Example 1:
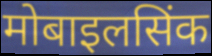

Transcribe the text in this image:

मोबाइलसिंक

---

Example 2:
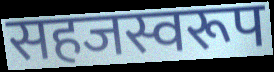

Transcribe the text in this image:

सहजस्वरूप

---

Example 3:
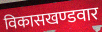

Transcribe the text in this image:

विकासखण्‍डवार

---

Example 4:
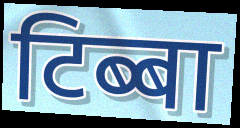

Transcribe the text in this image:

टिब्बा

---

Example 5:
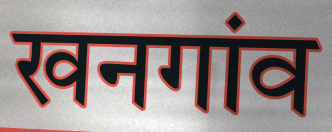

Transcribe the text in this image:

खनगांव